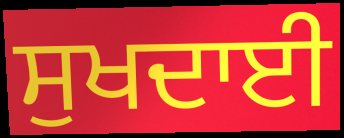
ਸੁਖਦਾਈ